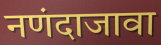
नणंदाजावा